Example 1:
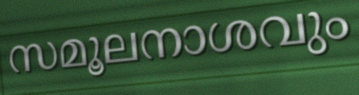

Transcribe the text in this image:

സമൂലനാശവും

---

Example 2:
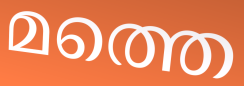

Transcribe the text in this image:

മത്തെ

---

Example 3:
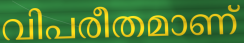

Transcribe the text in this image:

വിപരീതമാണ്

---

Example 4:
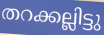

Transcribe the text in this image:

തറക്കല്ലിട്ടു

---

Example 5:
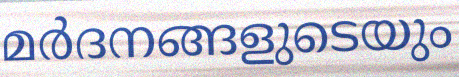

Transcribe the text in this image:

മർദനങ്ങളുടെയും